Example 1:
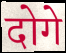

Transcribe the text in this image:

दोगे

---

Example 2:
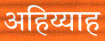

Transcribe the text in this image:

अहिय्याह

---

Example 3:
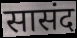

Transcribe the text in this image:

सासंद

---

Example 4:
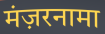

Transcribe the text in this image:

मंज़रनामा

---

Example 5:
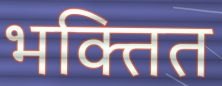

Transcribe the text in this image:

भक्तित